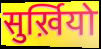
सुर्ख़ियो